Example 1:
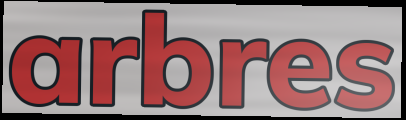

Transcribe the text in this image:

arbres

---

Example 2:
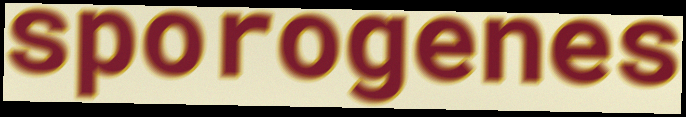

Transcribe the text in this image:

sporogenes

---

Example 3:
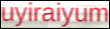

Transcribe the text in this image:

uyiraiyum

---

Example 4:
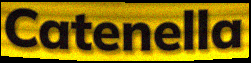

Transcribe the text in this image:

Catenella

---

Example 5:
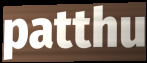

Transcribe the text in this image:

patthu